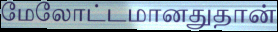
மேலோட்டமானதுதான்